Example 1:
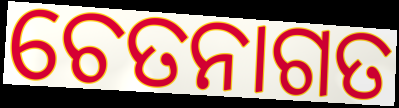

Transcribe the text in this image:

ଚେତନାଗତ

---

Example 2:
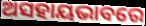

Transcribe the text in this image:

ଅସହାୟଭାବରେ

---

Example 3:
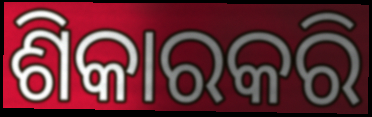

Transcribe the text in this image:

ଶିକାରକରି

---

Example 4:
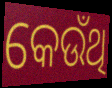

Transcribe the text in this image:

କେଉଁଥି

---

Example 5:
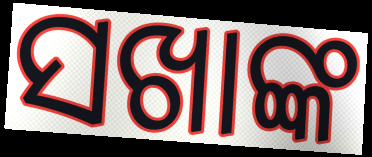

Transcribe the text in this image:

ସଖାଙ୍କ